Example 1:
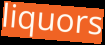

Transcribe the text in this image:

liquors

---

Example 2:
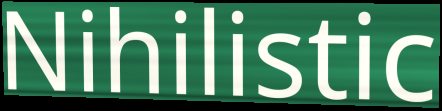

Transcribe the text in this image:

Nihilistic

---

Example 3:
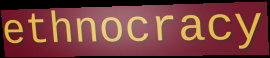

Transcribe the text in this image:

ethnocracy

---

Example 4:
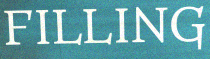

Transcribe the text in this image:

FILLING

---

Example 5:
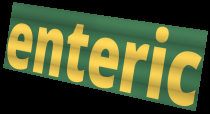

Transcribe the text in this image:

enteric